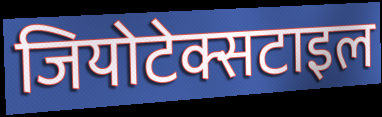
जियोटेक्सटाइल